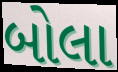
બોલા